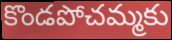
కొండపోచమ్మకు